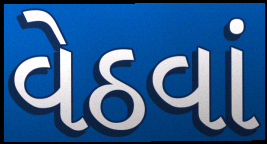
વેઠવાં